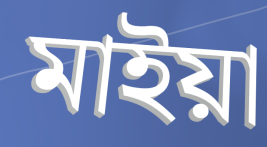
মাইয়া